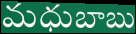
మధుబాబు